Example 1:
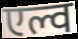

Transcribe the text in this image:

एल्व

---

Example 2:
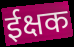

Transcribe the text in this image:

ईक्षक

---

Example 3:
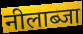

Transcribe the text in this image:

नीलाब्जा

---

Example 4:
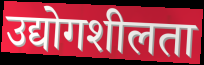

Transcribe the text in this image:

उद्योगशीलता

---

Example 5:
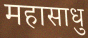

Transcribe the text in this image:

महासाधु